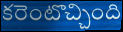
కరెంటొచ్చింది